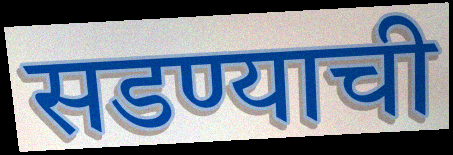
सडण्याची